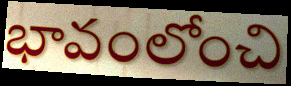
భావంలోంచి